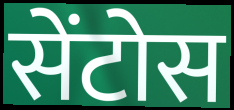
सेंटोस